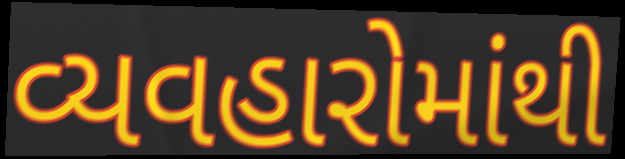
વ્યવહારોમાંથી